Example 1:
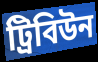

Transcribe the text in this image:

ট্রিবিউন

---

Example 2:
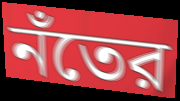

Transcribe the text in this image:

নঁতের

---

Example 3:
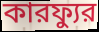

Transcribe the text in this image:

কারফ্যুর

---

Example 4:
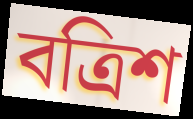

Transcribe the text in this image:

বত্রিশ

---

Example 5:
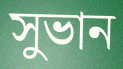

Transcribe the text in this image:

সুভান